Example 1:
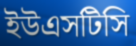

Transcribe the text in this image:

ইউএসটিসি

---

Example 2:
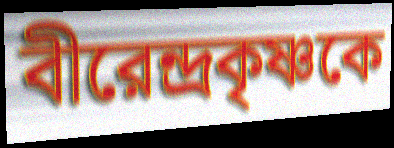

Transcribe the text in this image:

বীরেন্দ্রকৃষ্ণকে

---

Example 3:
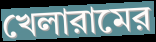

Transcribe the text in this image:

খেলারামের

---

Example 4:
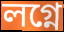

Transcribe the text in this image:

লগ্নে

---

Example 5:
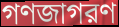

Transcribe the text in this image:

গণজাগরণ